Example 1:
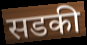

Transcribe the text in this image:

सडकी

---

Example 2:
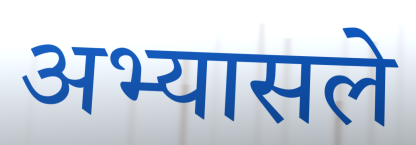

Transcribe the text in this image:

अभ्यासले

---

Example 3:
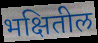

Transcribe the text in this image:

भक्षितील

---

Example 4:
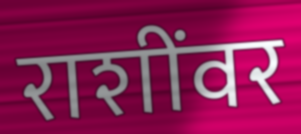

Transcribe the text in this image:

राशींवर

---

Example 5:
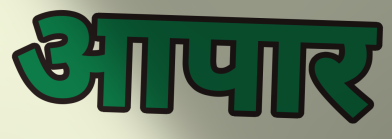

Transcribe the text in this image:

आपार